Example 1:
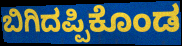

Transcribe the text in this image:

ಬಿಗಿದಪ್ಪಿಕೊಂಡ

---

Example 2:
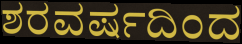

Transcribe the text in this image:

ಶರವರ್ಷದಿಂದ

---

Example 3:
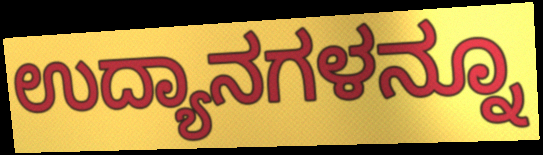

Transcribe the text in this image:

ಉದ್ಯಾನಗಳನ್ನೂ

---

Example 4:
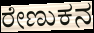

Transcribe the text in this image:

ರೇಣುಕನ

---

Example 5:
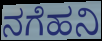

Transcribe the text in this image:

ನಗೆಹನಿ